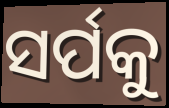
ସର୍ପକୁ